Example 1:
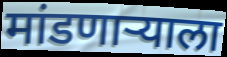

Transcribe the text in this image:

मांडणाऱ्याला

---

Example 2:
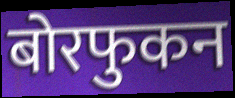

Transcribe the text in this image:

बोरफुकन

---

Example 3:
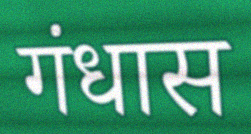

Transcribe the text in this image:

गंधास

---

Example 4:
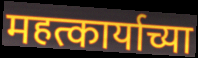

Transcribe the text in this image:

महत्कार्याच्या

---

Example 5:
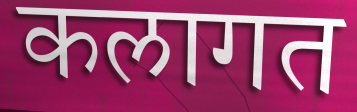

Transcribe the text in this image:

कलागत